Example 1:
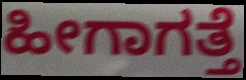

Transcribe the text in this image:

ಹೀಗಾಗತ್ತೆ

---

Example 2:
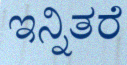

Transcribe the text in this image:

ಇನ್ನಿತರೆ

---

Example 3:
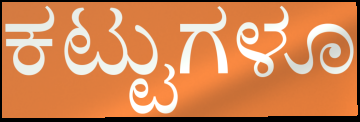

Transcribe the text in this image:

ಕಟ್ಟುಗಳೂ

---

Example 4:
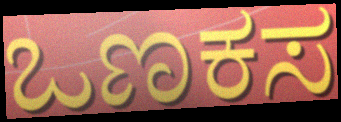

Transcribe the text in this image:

ಒಣಕಸ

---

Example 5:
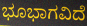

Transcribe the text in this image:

ಭೂಭಾಗವಿದೆ